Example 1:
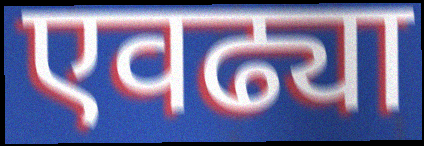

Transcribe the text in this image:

एवढ्या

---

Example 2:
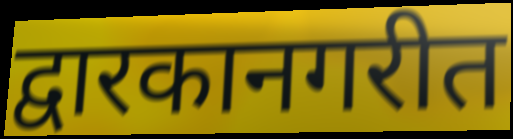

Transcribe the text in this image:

द्वारकानगरीत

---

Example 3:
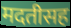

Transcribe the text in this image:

मदतीसह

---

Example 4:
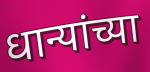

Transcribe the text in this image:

धान्यांच्या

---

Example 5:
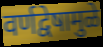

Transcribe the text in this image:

वर्णद्वेषामुळे